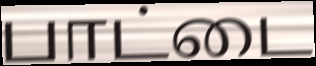
பாட்டை